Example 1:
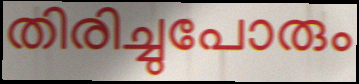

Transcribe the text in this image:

തിരിച്ചുപോരും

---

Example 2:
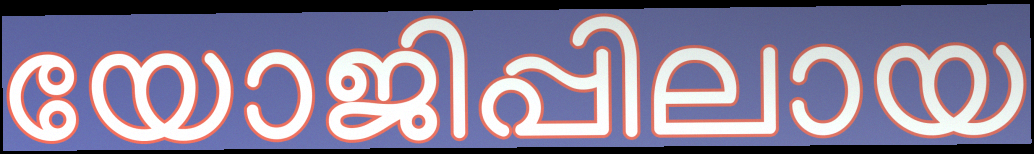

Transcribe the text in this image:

യോജിപ്പിലായ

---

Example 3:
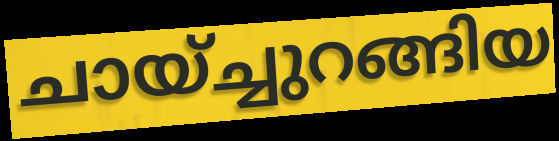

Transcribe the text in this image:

ചായ്ച്ചുറങ്ങിയ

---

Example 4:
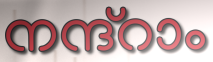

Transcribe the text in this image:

നന്ദ്റാം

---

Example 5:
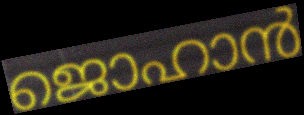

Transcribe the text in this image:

ജൊഹാൻ